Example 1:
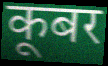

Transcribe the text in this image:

कूबर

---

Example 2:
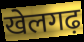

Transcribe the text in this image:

खेलगढ़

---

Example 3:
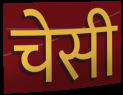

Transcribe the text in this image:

चेसी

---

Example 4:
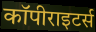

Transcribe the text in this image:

कॉपीराइटर्स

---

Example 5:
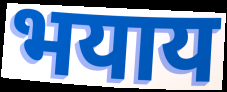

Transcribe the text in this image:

भयाय